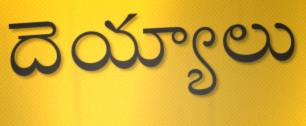
దెయ్యాలు